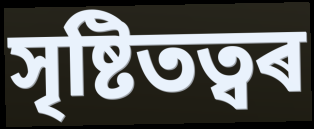
সৃষ্টিতত্বৰ